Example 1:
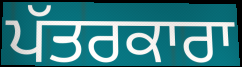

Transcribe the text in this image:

ਪੱਤਰਕਾਰਾ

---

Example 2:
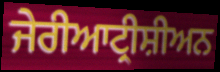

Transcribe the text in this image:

ਜੇਰੀਆਟ੍ਰੀਸ਼ੀਅਨ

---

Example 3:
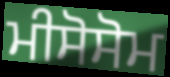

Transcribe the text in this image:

ਮੀਸੋਸੋਮ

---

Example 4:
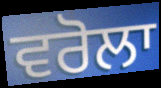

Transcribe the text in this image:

ਵਰੋਲਾ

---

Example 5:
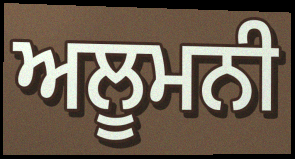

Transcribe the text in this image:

ਅਲੂਮਨੀ